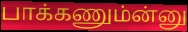
பாக்கணும்ன்னு